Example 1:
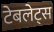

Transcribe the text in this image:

टेबलेट्स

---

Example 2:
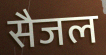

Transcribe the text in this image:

सैजल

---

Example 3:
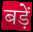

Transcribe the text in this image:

बड़ें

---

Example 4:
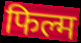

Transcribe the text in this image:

फिल्म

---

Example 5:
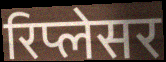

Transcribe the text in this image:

रिप्लेसर